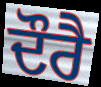
ਦੌਰੈ